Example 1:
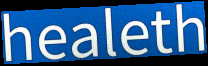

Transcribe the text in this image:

healeth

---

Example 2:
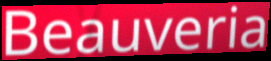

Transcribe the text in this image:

Beauveria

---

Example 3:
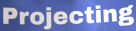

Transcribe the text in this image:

Projecting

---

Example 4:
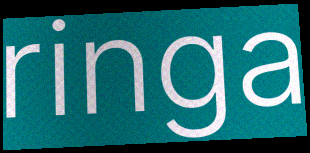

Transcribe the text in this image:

ringa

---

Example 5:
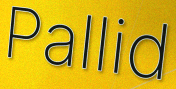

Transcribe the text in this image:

Pallid